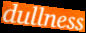
dullness